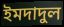
ইমদাদুল